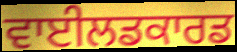
ਵਾਈਲਡਕਾਰਡ